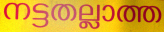
നട്ടതല്ലാത്ത